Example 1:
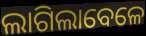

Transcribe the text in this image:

ଲାଗିଲାବେଳେ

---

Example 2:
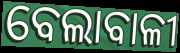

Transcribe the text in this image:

ବେଲାବାଳୀ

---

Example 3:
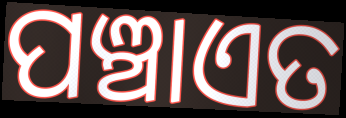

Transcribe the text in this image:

ପଞ୍ଚାଏତ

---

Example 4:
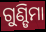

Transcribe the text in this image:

ଗୁଣ୍ଡିମା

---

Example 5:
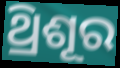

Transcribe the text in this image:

ଥ୍ରିଶୂର